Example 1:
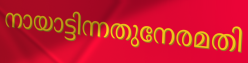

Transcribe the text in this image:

നായാട്ടിന്നതുനേരമതി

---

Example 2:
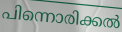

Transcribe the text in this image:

പിന്നൊരിക്കൽ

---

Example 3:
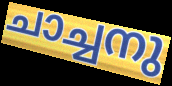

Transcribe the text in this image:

ചാച്ചനു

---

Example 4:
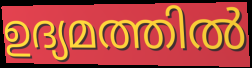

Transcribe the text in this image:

ഉദ്യമത്തിൽ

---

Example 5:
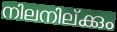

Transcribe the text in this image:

നിലനില്ക്കും